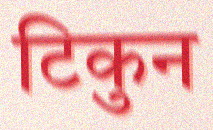
टिकुन